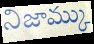
నిజామ్కు